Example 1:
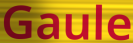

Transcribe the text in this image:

Gaule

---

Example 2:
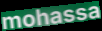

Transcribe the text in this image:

mohassa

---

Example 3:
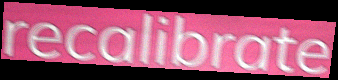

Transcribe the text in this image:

recalibrate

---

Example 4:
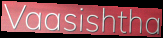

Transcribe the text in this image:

Vaasishtha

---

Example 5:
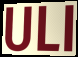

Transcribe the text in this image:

ULI